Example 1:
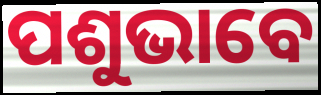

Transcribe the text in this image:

ପଶୁଭାବେ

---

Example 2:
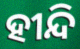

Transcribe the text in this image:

ହୀନ୍ଦି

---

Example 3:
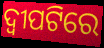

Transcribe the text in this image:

ଦ୍ୱୀପଟିରେ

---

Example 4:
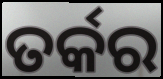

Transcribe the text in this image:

ତର୍କର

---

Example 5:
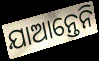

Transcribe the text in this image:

ଯାଆନ୍ତେନି